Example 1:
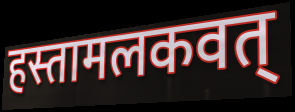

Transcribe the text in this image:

हस्तामलकवत्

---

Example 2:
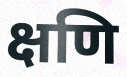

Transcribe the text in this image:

क्षणि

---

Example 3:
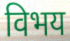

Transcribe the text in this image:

विभय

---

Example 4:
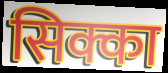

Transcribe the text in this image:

सिक्‍का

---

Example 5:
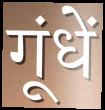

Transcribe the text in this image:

गूंधें